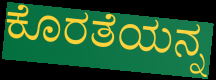
ಕೊರತೆಯನ್ನ